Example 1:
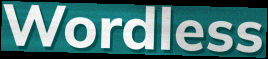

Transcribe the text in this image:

Wordless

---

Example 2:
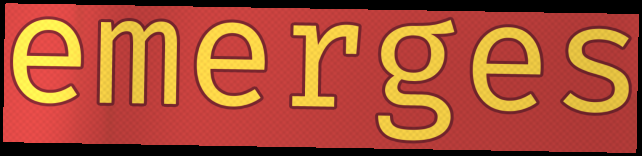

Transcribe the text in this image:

emerges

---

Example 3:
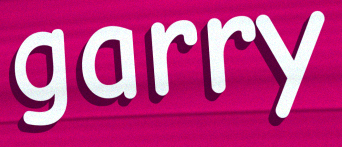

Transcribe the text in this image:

garry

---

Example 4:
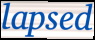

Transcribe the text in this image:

lapsed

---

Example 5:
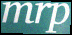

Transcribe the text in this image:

mrp